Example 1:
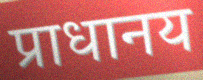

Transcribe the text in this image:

प्राधानय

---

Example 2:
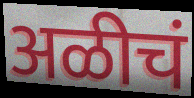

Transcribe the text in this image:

अळीचं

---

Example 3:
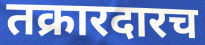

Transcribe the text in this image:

तक्रारदारच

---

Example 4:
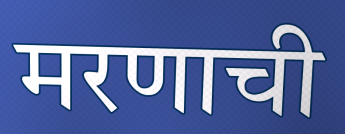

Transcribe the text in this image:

मरणाची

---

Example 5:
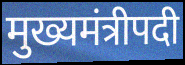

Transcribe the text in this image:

मुख्यमंत्रीपदी